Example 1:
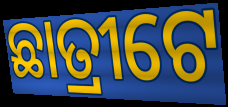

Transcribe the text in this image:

ଛାତ୍ରୀଟେ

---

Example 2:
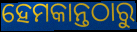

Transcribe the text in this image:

ହେମକାନ୍ତଠାରୁ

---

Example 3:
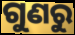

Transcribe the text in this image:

ଗୁଣରୁ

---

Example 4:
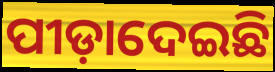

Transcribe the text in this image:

ପୀଡ଼ାଦେଇଛି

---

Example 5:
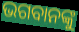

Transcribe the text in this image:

ଭଗବାନଙ୍କୁ